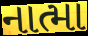
નાત્મા